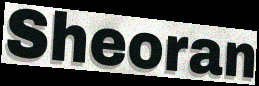
Sheoran